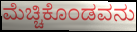
ಮೆಚ್ಚಿಕೊಂಡವನು